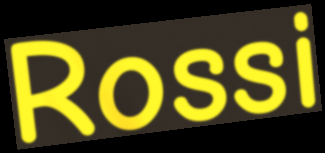
Rossi